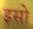
इसो